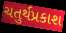
ચતુર્થપ્રકાશ